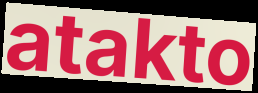
atakto